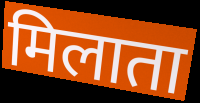
मिलाता